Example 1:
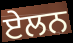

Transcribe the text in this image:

ਏਲਨ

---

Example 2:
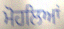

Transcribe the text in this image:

ਮੋਹਲਿਆਂ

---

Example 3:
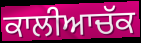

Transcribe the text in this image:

ਕਾਲੀਆਚੱਕ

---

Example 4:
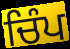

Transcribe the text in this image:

ਚਿੰਪ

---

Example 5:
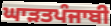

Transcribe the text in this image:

ਘਾੜਤਪੰਜਾਬੀ